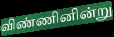
விண்ணினின்று